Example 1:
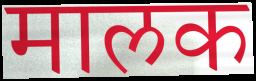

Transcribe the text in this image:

मालक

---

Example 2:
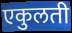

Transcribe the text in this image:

एकुलती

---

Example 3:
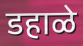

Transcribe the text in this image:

डहाळे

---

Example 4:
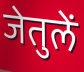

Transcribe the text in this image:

जेतुलें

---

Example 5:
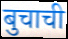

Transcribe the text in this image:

बुचाची